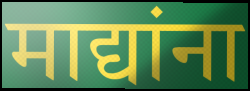
माद्यांना